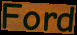
Ford